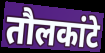
तौलकांटे